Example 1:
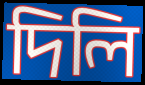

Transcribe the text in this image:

দিলি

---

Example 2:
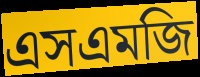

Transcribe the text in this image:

এসএমজি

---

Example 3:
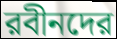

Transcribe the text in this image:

রবীনদের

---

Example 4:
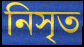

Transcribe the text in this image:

নিসৃত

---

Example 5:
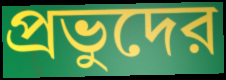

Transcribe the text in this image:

প্রভুদের